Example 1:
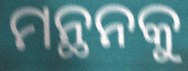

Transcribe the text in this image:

ମନ୍ଥନକୁ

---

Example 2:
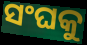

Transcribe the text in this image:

ସଂଘକୁ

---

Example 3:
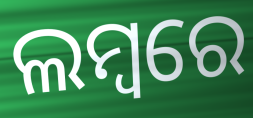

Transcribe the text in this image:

ଲମ୍ବରେ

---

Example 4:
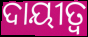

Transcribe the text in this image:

ଦାୟୀତ୍ୱ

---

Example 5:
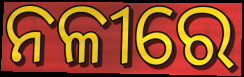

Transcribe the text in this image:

ନଳୀରେ